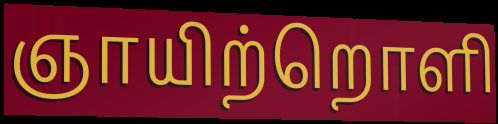
ஞாயிற்றொளி